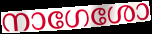
നാഗേശോ